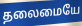
தலைமையே